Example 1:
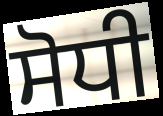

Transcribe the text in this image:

ਸੋਧੀ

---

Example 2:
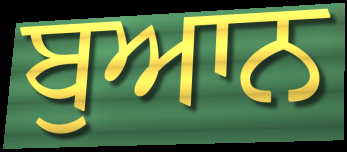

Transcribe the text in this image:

ਬੁਆਨ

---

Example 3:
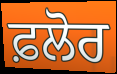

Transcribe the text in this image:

ਫ਼ਲੋਰ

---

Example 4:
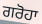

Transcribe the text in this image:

ਗਰੋਹਾ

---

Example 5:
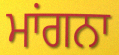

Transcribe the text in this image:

ਮਾਂਗਨਾ